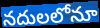
నదులలోనూ